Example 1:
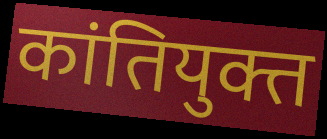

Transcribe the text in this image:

कांतियुक्त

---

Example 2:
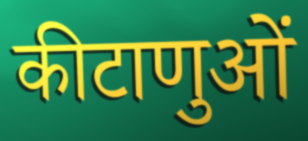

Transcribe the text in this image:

कीटाणुओं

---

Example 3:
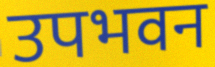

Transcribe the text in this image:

उपभवन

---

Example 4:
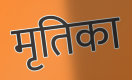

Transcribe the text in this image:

मृतिका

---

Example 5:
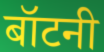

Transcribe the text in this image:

बॉटनी